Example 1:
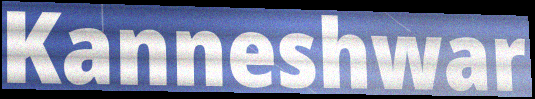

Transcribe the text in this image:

Kanneshwar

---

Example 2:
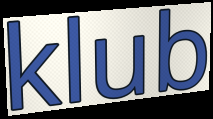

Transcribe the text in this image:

klub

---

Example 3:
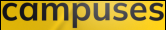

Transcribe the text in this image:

campuses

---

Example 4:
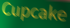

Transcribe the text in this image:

Cupcake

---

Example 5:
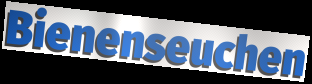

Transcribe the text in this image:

Bienenseuchen